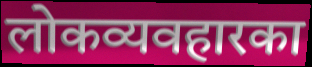
लोकव्यवहारका